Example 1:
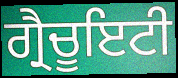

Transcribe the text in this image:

ਗ੍ਰੈਚੂਇਟੀ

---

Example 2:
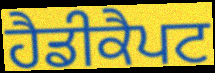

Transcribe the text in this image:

ਹੈਡੀਕੈਪਟ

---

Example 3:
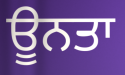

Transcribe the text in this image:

ਊਨਤਾ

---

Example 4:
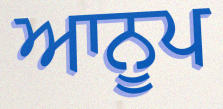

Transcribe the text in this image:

ਆਨੂਪ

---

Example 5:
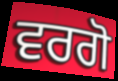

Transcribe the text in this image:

ਵਰਗੋ